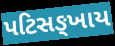
પટિસઙ્ખાય